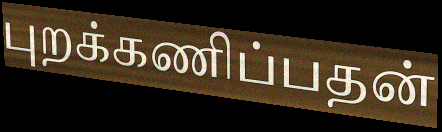
புறக்கணிப்பதன்